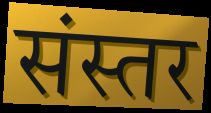
संस्तर